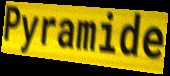
Pyramide